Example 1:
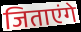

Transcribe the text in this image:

जिताएंगे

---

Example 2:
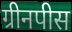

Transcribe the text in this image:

ग्रीनपीस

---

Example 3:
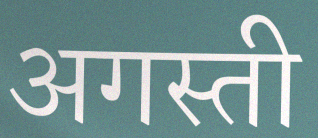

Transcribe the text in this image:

अगस्ती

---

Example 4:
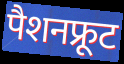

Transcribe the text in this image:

पैशनफ्रूट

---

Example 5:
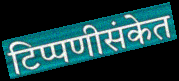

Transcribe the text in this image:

टिप्पणीसंकेत